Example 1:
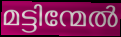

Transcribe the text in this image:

മട്ടിന്മേൽ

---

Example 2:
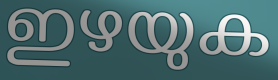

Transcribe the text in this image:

ഇഴയുക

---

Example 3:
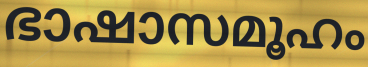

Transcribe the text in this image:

ഭാഷാസമൂഹം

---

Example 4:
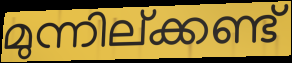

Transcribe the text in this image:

മുന്നില്ക്കണ്ട്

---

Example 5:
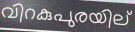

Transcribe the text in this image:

വിറകുപുരയില്